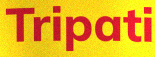
Tripati